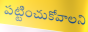
పట్టించుకోవాలని